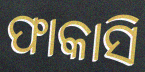
ଫାକାସି